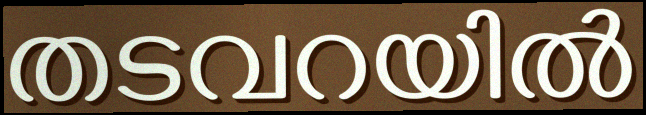
തടവറയിൽ